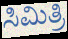
ಸಿಮಿತ್ರಿ